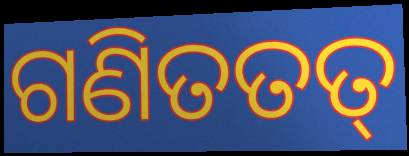
ଗଣିତତତ୍